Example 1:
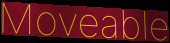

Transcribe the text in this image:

Moveable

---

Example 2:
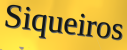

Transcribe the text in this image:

Siqueiros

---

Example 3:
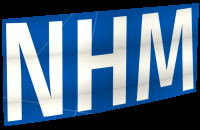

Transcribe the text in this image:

NHM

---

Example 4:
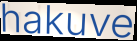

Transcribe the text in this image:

hakuve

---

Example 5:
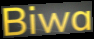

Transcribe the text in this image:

Biwa